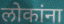
लोकांना